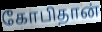
கோபிதான்